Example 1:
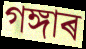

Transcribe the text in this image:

গঙ্গাৰ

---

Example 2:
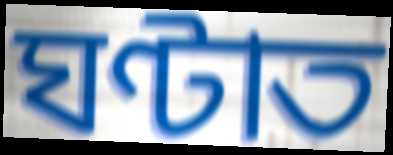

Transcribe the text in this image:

ঘণ্টাত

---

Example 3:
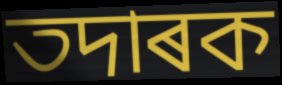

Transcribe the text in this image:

তদাৰক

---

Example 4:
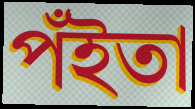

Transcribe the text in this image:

পঁইতা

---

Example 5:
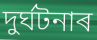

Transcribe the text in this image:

দুৰ্ঘটনাৰ